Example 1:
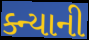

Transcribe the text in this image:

ક્ન્યાની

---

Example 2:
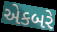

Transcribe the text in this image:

એકબરે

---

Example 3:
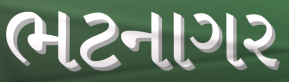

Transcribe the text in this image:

ભટનાગર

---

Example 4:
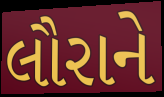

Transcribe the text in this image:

લૌરાને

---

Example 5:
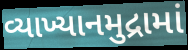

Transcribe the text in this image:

વ્યાખ્યાનમુદ્રામાં